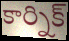
కార్నిక్